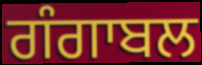
ਗੰਗਾਬਲ